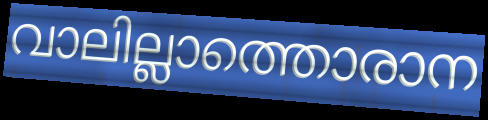
വാലില്ലാത്തൊരാന